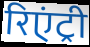
रिएंट्री